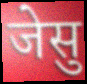
जेसु